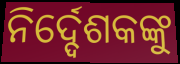
ନିର୍ଦ୍ଦେଶକଙ୍କୁ